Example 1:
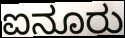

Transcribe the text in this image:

ಐನೂರು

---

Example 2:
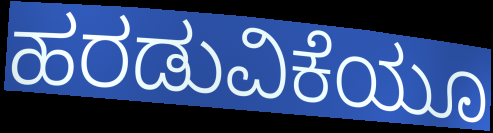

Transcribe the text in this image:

ಹರಡುವಿಕೆಯೂ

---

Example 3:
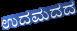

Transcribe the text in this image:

ಉದಮದದ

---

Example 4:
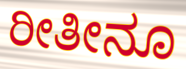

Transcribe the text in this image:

ರೀತೀನೂ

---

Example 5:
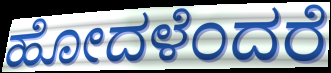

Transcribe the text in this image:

ಹೋದಳೆಂದರೆ